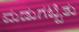
ಮಡುಗಟ್ಟಿತು